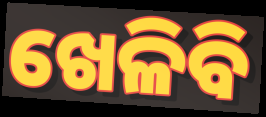
ଖେଳିବି